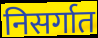
निसर्गात